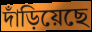
দাঁড়িয়েছে